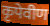
कृपेवीण